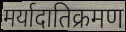
मर्यादातिक्रमण